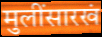
मुलींसारखं